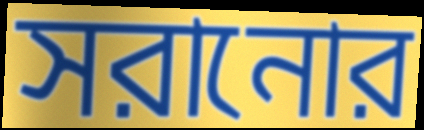
সরানোর